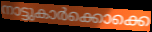
നാട്ടുകാർക്കൊക്കെ